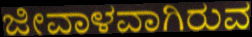
ಜೀವಾಳವಾಗಿರುವ